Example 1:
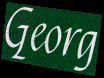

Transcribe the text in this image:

Georg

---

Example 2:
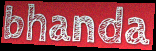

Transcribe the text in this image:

bhanda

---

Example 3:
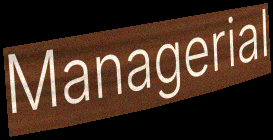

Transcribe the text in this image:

Managerial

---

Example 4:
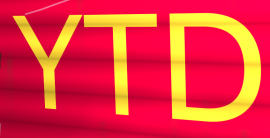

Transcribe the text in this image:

YTD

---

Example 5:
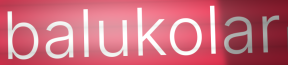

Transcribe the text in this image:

balukolar